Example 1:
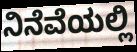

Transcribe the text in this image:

ನಿನೆವೆಯಲ್ಲಿ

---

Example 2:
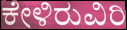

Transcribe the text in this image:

ಕೇಳಿರುವಿರಿ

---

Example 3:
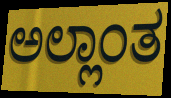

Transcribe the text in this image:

ಅಲ್ಲಾಂತ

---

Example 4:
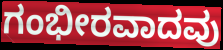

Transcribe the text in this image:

ಗಂಭೀರವಾದವು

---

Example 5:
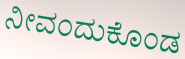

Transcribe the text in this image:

ನೀವಂದುಕೊಂಡ